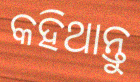
କହିଥାନ୍ତୁ